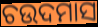
ଚଉଦମାସ